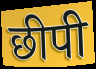
छीपी